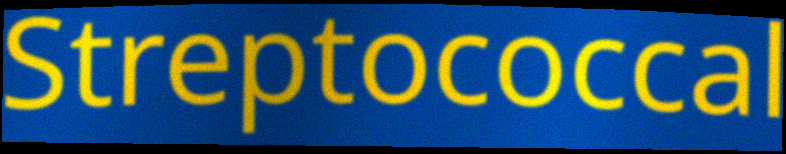
Streptococcal